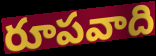
రూపవాది